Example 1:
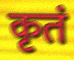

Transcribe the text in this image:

कृतं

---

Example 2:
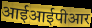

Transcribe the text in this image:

आईआईपीआर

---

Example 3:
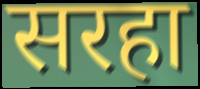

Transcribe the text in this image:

सरहा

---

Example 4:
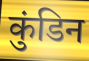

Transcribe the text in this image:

कुंडिन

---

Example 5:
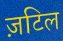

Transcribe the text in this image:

ज़टिल